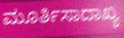
ಮೂರ್ತಿಸಾದಾಖ್ಯ